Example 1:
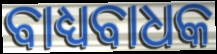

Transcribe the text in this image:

ବାଧ୍ୟବାଧକ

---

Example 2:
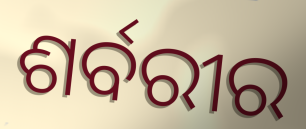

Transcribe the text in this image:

ଶର୍ବରୀର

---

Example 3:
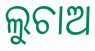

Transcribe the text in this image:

ଲୁଚାଅ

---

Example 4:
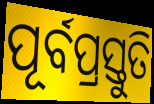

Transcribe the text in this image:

ପୂର୍ବପ୍ରସ୍ତୁତି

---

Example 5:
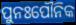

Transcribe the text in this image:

ପୁନଃପୌନିକ